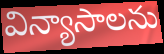
విన్యాసాలను